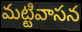
మట్టివాసన